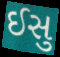
ઈસુ